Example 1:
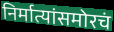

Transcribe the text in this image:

निर्मात्यांसमोरचं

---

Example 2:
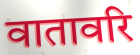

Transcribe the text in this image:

वातावरि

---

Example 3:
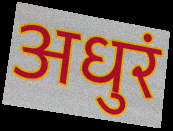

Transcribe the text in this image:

अधुरं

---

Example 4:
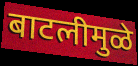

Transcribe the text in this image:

बाटलीमुळे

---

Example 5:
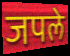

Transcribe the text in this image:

जपले